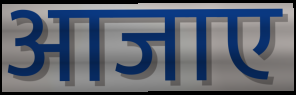
आजाए